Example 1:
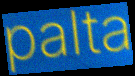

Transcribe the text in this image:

palta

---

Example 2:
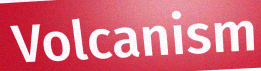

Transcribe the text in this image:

Volcanism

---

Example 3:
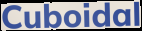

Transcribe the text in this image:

Cuboidal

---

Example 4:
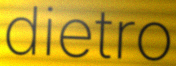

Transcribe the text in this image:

dietro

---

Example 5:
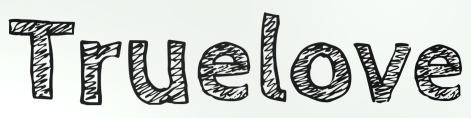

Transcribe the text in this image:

Truelove